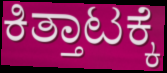
ಕಿತ್ತಾಟಕ್ಕೆ